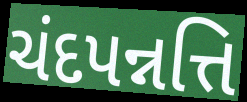
ચંદપન્નત્તિ